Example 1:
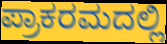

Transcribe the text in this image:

ಪ್ರಾಕರಮದಲ್ಲಿ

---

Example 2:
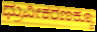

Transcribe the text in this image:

ಧ್ರುವೀಕರಣಕ್ಕೂ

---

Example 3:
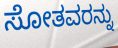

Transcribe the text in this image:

ಸೋತವರನ್ನು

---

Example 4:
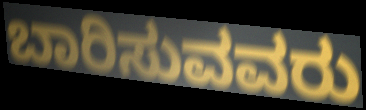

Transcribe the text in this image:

ಬಾರಿಸುವವರು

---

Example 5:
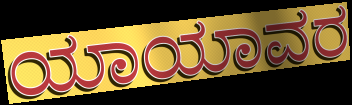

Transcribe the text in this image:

ಯಾಯಾವರ